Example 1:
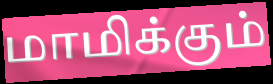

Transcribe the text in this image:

மாமிக்கும்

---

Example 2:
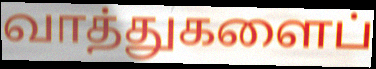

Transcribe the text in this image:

வாத்துகளைப்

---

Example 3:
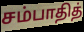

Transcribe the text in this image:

சம்பாதித்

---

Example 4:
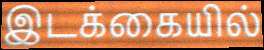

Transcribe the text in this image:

இடக்கையில்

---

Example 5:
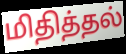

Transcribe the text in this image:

மிதித்தல்